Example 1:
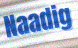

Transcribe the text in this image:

Naadig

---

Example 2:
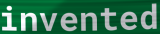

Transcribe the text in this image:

invented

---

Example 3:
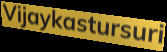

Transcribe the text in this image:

Vijaykastursuri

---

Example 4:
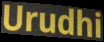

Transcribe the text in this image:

Urudhi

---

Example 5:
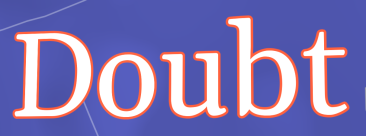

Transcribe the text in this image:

Doubt